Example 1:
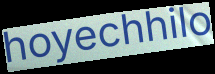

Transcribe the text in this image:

hoyechhilo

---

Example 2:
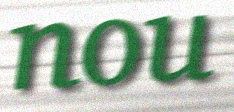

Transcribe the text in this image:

nou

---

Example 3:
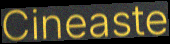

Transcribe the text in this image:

Cineaste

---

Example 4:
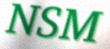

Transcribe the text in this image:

NSM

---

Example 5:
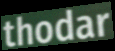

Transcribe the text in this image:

thodar